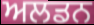
ਅਲਡਨ